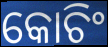
କୋଚିଂ